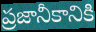
ప్రజానీకానికి